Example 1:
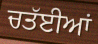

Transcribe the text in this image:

ਚਤੱਈਆਂ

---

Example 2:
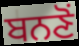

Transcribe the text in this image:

ਬਨਣੋਂ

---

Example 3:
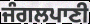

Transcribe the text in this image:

ਜੰਗਲਪਾਣੀ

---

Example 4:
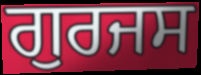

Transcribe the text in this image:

ਗੁਰਜਸ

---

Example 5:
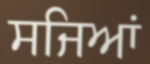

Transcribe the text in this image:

ਸਜਿਆਂ